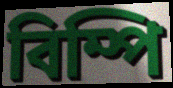
বিম্পি